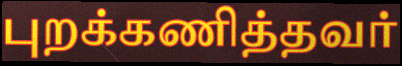
புறக்கணித்தவர்